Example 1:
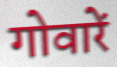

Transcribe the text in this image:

गोवारें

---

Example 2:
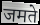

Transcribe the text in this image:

जमते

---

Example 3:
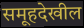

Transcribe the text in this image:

समूहदेखील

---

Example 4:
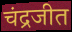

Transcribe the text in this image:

चंद्रजीत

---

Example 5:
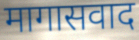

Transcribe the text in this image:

मागासवाद